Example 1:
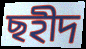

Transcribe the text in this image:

ছহীদ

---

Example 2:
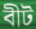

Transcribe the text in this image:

বীট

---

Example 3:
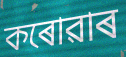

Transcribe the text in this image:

কৰোৱাৰ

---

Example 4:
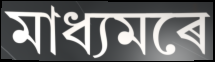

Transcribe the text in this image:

মাধ্যমৰে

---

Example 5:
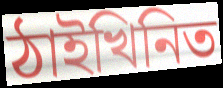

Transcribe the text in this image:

ঠাইখিনিত